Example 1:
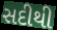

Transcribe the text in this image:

સદીથી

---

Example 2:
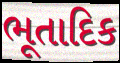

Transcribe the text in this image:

ભૂતાદિક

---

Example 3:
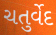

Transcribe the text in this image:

ચતુર્વેદ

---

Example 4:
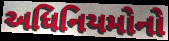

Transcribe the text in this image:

અધિનિયમોનો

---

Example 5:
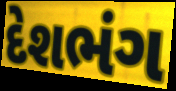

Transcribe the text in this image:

દેશભંગ